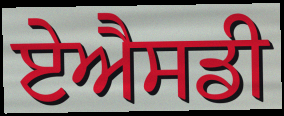
ਏਐਸਡੀ